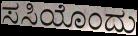
ಸಸಿಯೊಂದು